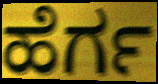
ಹೆರ್ಗ